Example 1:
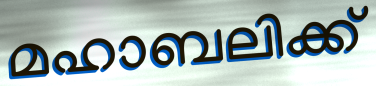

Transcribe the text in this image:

മഹാബലിക്ക്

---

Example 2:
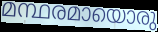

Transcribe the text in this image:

മന്ഥരമായൊരു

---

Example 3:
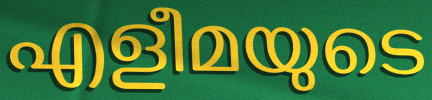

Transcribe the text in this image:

എളീമയുടെ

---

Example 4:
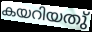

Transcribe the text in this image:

കയറിയതു്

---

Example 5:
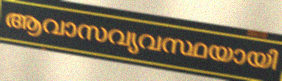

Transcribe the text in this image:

ആവാസവ്യവസ്ഥയായി